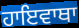
ਹਾਇਵਾਥਾ